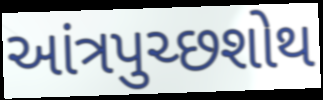
આંત્રપુચ્છશોથ